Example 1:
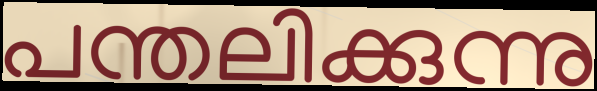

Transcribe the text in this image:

പന്തലിക്കുന്നു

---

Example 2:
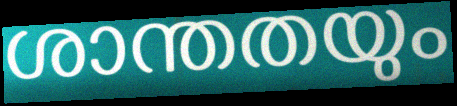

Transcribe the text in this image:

ശാന്തതയും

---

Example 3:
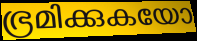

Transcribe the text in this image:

ഭ്രമിക്കുകയോ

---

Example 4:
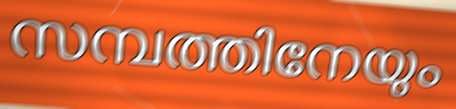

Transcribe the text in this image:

സമ്പത്തിനേയും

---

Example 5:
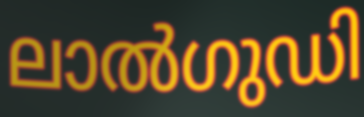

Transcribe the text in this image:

ലാൽഗുഡി